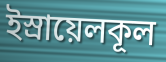
ইস্রায়েলকূল